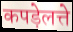
कपड़ेलत्ते